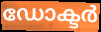
ഡോക്ടർ